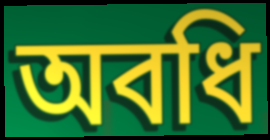
অবধি